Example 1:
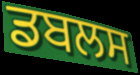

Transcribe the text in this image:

ਡਬਲਸ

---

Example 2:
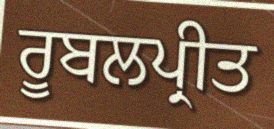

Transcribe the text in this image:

ਰੂਬਲਪ੍ਰੀਤ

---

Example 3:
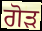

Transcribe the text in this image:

ਗੋੜ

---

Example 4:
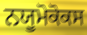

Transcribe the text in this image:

ਨਯੂਮੋਕੋਕਸ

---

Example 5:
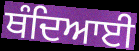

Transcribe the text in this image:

ਥੰਦਿਆਈ